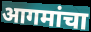
आगमांचा